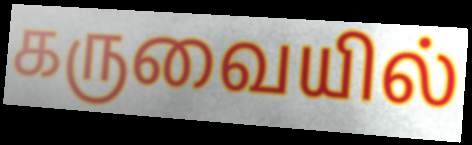
கருவையில்